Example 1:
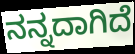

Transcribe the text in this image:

ನನ್ನದಾಗಿದೆ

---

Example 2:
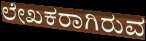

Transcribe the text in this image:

ಲೇಖಕರಾಗಿರುವ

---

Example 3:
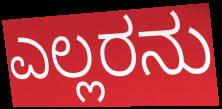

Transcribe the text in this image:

ಎಲ್ಲರನು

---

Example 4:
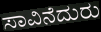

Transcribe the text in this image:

ಸಾವಿನೆದುರು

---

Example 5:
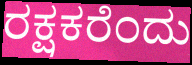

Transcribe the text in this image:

ರಕ್ಷಕರೆಂದು